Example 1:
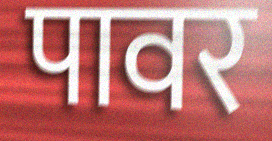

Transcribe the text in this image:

पावर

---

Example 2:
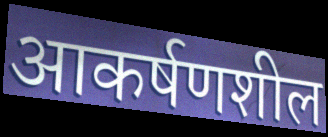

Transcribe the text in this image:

आकर्षणशील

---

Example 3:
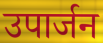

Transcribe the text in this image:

उपार्जन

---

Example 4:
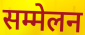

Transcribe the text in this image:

सम्मेलन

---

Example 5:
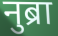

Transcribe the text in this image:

नुब्रा